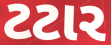
ટટાર